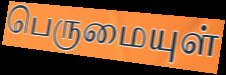
பெருமையுள்